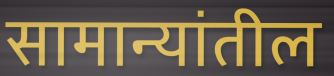
सामान्यांतील